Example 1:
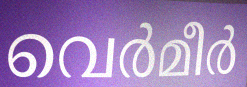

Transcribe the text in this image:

വെർമീർ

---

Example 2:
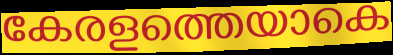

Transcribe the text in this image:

കേരളത്തെയാകെ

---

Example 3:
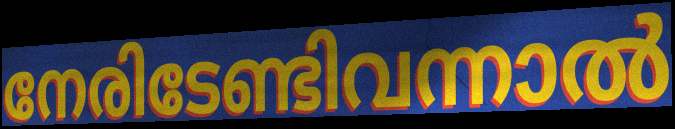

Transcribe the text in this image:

നേരിടേണ്ടിവന്നാൽ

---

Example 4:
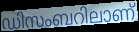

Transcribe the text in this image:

ഡിസംബറിലാണ്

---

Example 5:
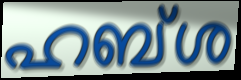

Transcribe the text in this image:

ഹബ്ശ